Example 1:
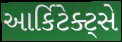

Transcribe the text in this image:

આર્કિટેક્ટ્સે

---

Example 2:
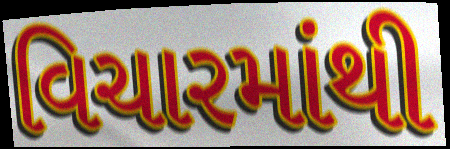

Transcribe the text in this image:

વિચારમાંથી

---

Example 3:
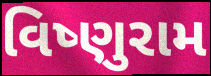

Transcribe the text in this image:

વિષ્ણુરામ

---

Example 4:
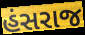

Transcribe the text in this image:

હંસરાજ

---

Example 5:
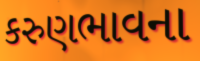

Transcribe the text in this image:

કરુણભાવના